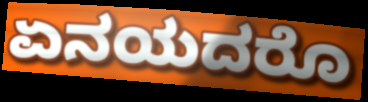
ಏನಯದರೊ